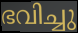
ഭവിച്ചു